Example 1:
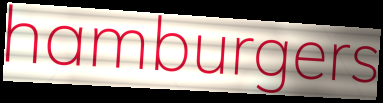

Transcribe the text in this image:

hamburgers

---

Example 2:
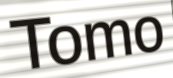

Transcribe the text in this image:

Tomo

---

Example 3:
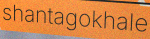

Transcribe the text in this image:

shantagokhale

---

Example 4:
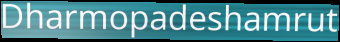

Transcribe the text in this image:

Dharmopadeshamrut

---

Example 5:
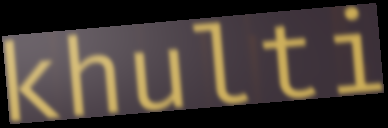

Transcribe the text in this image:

khulti